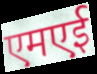
एमएई